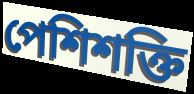
পেশিশক্তি